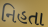
નિહતા